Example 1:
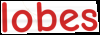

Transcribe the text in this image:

lobes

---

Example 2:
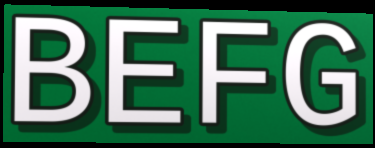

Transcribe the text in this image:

BEFG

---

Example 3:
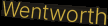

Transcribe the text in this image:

Wentworth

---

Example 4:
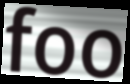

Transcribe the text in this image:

foo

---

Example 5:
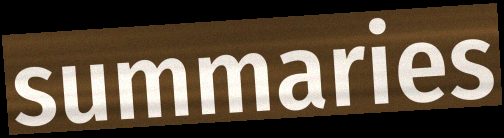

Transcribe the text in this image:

summaries